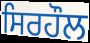
ਸਿਰਹੌਲ